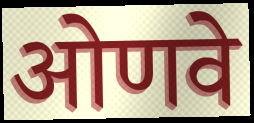
ओणवे